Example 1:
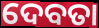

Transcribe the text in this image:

ଦେବତା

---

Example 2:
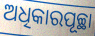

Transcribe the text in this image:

ଅଧିକାରପୂଚ୍ଛା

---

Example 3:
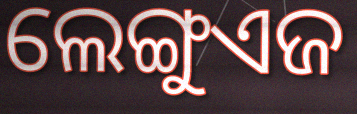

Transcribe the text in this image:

ଲେଙ୍ଗୁଏଜ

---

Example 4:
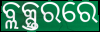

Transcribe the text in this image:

ବ୍ଲକ୍ସ୍ତରରେ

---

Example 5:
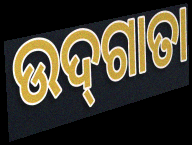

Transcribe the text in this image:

ଉଦ୍‌ଗାତା